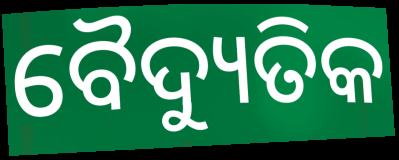
ବୈଦ୍ୟୁତିକ